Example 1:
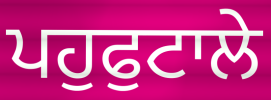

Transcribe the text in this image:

ਪਹੁਫੁਟਾਲੇ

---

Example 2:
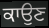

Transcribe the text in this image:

ਕਾਉਣ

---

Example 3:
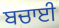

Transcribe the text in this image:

ਬਚਾਈ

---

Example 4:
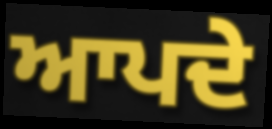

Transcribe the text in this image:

ਆਪਦੇ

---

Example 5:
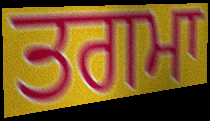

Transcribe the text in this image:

ਤਗਮਾ